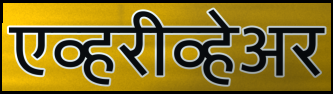
एव्हरीव्हेअर